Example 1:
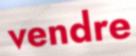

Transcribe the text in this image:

vendre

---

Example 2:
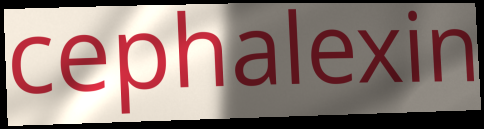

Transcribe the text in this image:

cephalexin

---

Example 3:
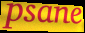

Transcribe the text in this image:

psane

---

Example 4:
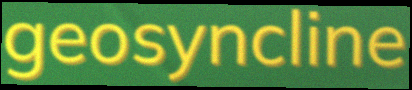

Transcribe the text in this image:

geosyncline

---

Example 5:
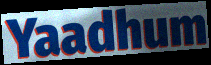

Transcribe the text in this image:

Yaadhum